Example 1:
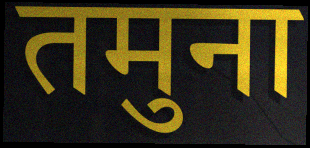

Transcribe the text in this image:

तमुना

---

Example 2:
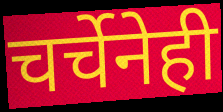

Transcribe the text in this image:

चर्चेनेही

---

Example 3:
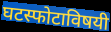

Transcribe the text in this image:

घटस्फोटाविषयी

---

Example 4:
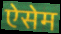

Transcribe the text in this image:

ऐसेम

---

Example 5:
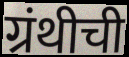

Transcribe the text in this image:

ग्रंथीची